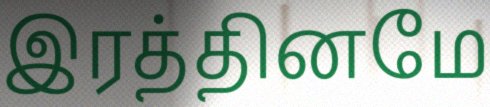
இரத்தினமே